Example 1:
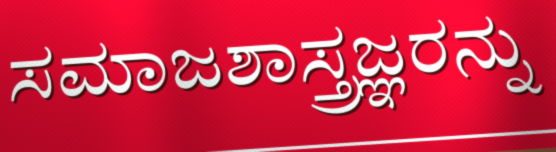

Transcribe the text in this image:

ಸಮಾಜಶಾಸ್ತ್ರಜ್ಞರನ್ನು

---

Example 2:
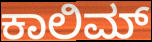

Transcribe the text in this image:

ಕಾಲಿಮ್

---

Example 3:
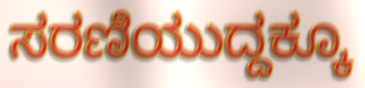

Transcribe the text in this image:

ಸರಣಿಯುದ್ದಕ್ಕೂ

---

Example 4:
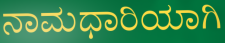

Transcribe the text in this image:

ನಾಮಧಾರಿಯಾಗಿ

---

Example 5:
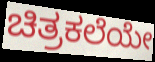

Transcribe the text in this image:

ಚಿತ್ರಕಲೆಯೇ